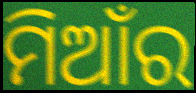
ମିଆଁର